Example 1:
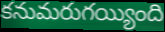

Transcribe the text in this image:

కనుమరుగయ్యింది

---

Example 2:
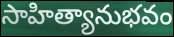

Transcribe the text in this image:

సాహిత్యానుభవం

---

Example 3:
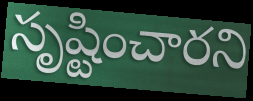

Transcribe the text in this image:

సృష్టించారని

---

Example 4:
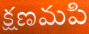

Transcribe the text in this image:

క్షణమపి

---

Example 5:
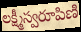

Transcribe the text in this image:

లక్ష్మీస్వరూపిణి